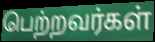
பெற்றவர்கள்